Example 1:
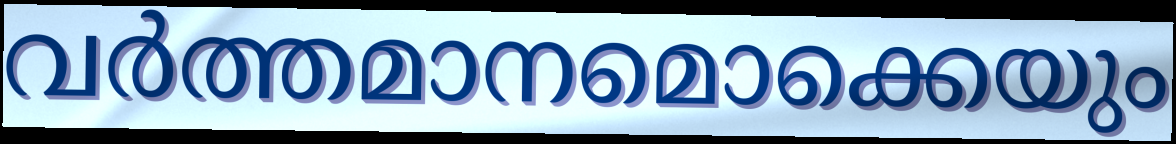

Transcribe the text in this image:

വർത്തമാനമൊക്കെയും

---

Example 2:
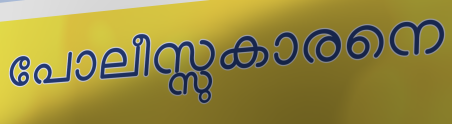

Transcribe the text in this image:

പോലീസ്സുകാരനെ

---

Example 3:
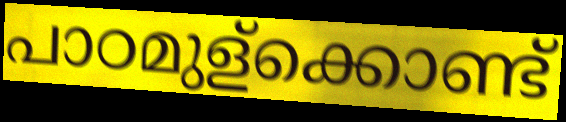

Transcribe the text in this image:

പാഠമുള്ക്കൊണ്ട്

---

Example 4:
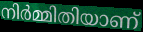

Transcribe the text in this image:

നിർമ്മിതിയാണ്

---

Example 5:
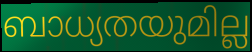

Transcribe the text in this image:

ബാധ്യതയുമില്ല